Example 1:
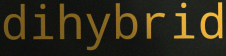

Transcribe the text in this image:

dihybrid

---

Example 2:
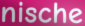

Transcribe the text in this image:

nische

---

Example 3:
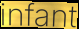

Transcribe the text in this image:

infant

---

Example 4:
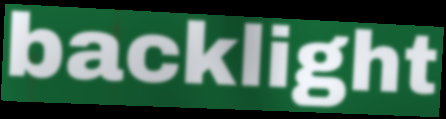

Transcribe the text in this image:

backlight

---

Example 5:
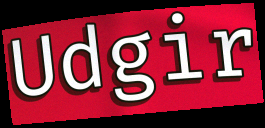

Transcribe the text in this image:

Udgir